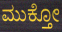
ಮುಕ್ತೋ